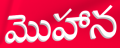
మొహాన